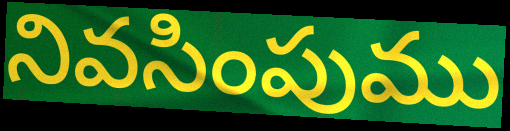
నివసింపుము